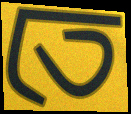
তে